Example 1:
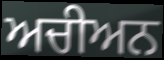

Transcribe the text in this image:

ਅਚੀਅਨ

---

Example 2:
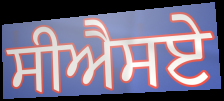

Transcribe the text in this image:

ਸੀਐਸਏ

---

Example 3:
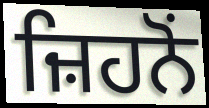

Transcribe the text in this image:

ਜ਼ਿਹਨੋਂ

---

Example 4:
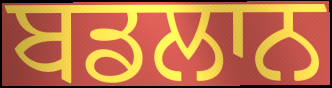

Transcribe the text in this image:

ਬਡਲਾਨ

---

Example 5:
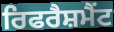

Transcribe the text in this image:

ਰਿਫਰੈਸ਼ਮੈਂਟ